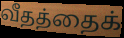
வீதத்தைக்